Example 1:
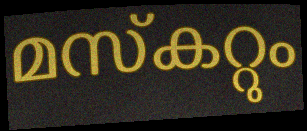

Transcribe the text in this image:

മസ്‌കറ്റും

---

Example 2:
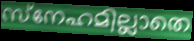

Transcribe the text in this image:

സ്‌നേഹമില്ലാതെ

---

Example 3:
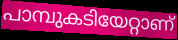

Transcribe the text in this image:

പാമ്പുകടിയേറ്റാണ്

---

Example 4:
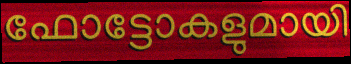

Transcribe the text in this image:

ഫോട്ടോകളുമായി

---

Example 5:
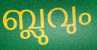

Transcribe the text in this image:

ബ്ലുവും